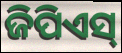
ଜିପିଏସ୍